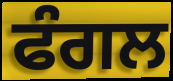
ਫੰਗਲ